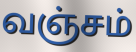
வஞ்சம்